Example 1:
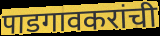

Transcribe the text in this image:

पाडगावकरांची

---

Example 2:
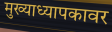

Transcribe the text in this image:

मुख्याध्यापकावर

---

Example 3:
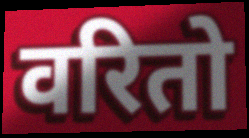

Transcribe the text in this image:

वरितो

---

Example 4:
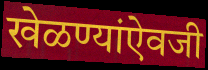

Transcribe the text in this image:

खेळण्यांऐवजी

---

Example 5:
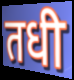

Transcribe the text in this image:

तधी